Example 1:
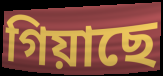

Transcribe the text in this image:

গিয়াছে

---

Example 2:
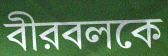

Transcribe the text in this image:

বীরবলকে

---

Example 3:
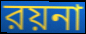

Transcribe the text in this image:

রয়না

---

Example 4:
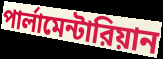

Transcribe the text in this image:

পার্লামেন্টারিয়ান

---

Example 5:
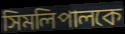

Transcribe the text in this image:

সিমলিপালকে